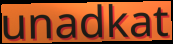
unadkat